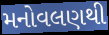
મનોવલણથી